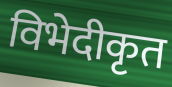
विभेदीकृत